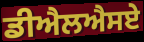
ਡੀਐਲਐਸਏ